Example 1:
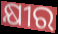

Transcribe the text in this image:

କ୍ଷୀର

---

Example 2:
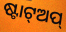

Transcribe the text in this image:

ଷ୍ଟାଟ୍ଅପ୍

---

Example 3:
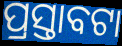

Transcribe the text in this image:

ପ୍ରସ୍ତାବଟା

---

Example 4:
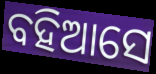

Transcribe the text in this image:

ବହିଆସେ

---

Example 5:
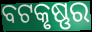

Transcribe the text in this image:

ବଟକୃଷ୍ଣର